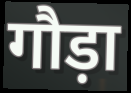
गौड़ा